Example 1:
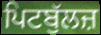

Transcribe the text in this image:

ਪਿਟਬੁੱਲਜ਼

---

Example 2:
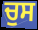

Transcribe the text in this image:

ਚੁਸ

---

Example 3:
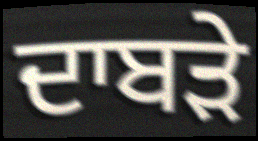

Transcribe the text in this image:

ਦਾਬੜੇ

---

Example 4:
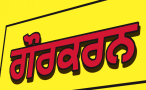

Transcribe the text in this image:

ਗੌਰਕਰਨ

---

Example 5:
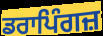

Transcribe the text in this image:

ਡਰਾਪਿੰਗਜ਼